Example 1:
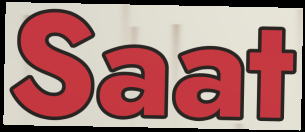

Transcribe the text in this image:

Saat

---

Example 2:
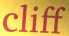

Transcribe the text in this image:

cliff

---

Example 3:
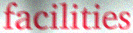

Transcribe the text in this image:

facilities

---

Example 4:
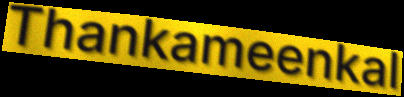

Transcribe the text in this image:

Thankameenkal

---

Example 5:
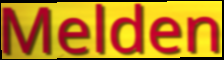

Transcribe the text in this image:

Melden